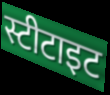
स्टीटाइट